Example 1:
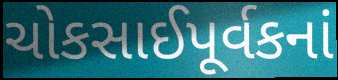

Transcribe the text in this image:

ચોકસાઈપૂર્વકનાં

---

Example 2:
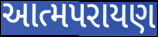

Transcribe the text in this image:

આત્મપરાયણ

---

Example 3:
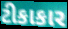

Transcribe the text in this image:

ટીકાકાર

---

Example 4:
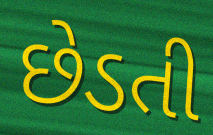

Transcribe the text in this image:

છેડતી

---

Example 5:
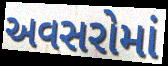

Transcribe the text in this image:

અવસરોમાં